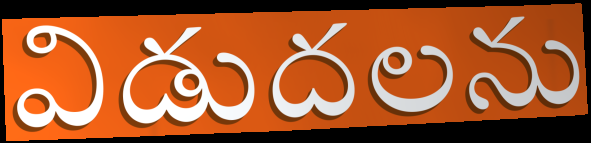
విడుదలను